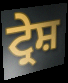
ਟ੍ਰੇਸ਼